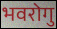
भवरोगु